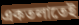
একতলাতেই